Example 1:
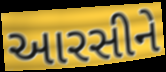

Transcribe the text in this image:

આરસીને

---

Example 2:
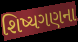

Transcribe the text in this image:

શિષ્યગણના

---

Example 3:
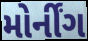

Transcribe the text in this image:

મોર્નીંગ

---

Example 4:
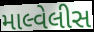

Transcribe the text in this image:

માલ્વેલીસ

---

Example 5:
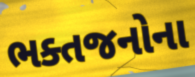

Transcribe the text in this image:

ભક્તજનોના